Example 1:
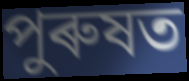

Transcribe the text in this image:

পুৰুষত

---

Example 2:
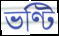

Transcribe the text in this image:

ভণ্টি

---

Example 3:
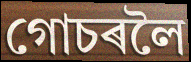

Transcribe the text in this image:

গোচৰলৈ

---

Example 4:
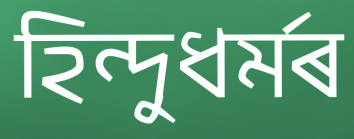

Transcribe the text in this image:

হিন্দুধৰ্মৰ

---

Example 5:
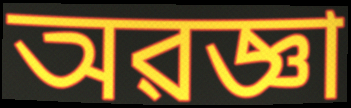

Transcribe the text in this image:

অৱজ্ঞা